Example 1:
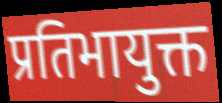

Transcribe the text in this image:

प्रतिभायुक्त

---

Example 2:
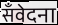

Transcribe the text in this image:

सँवेदना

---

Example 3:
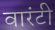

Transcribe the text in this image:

वारंटी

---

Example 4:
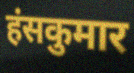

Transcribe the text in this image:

हंसकुमार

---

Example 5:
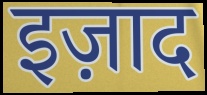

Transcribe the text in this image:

इज़ाद